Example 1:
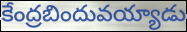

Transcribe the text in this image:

కేంద్రబిందువయ్యాడు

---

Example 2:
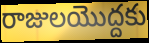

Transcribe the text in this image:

రాజులయొద్దకు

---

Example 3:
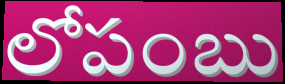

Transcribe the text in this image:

లోపంబు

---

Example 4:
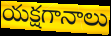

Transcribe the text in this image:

యక్షగానాలు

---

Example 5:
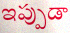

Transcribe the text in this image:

ఇప్పుడా